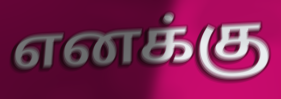
எனக்கு